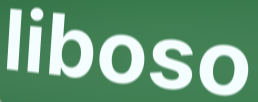
liboso